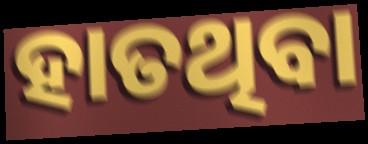
ହାତଥିବା